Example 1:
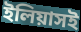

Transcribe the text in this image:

ইলিয়াসই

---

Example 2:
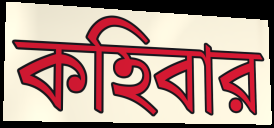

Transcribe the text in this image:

কহিবার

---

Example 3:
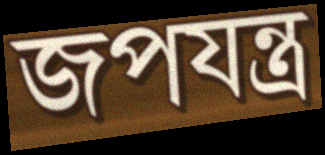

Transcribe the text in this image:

জপযন্ত্র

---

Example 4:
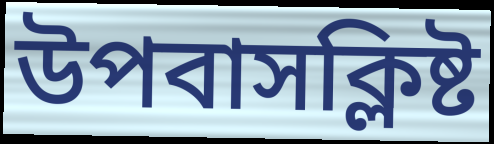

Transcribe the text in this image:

উপবাসক্লিষ্ট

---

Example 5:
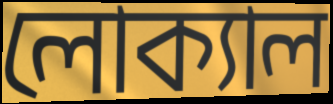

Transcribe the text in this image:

লোক্যাল